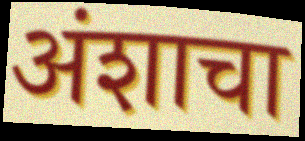
अंशाचा